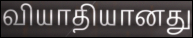
வியாதியானது